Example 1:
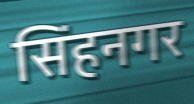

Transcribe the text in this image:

सिंहनगर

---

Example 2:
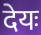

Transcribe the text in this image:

देयः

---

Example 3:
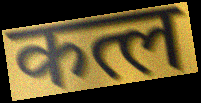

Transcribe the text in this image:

कत्‍ल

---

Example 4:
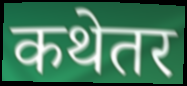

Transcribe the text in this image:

कथेतर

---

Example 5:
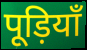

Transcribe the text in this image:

पूड़ियाँ